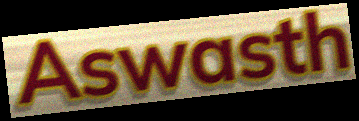
Aswasth